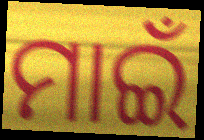
ମାଇଁ